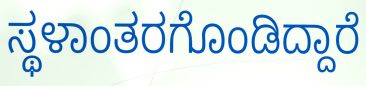
ಸ್ಥಳಾಂತರಗೊಂಡಿದ್ದಾರೆ